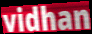
vidhan